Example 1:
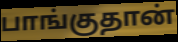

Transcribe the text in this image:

பாங்குதான்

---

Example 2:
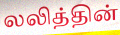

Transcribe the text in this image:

லலித்தின்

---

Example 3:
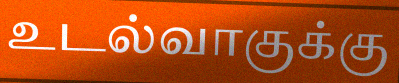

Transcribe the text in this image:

உடல்வாகுக்கு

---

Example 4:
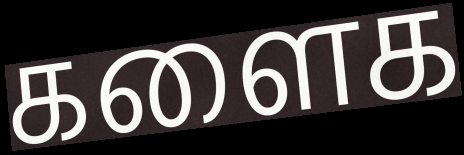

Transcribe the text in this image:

களைக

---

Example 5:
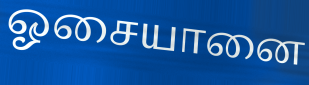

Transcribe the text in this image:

ஓசையானை